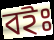
বইঃ